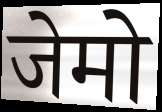
जेमो